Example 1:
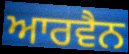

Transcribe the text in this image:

ਆਰਵੈਨ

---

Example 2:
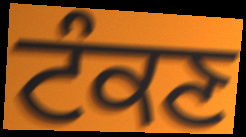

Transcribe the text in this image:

ਟੰਕਣ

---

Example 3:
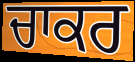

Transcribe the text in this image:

ਚਾਕਰ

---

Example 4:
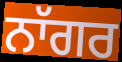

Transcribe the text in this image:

ਨਾੱਗਰ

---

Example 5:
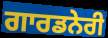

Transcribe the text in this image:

ਗਾਰਡਨੇਰੀ